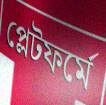
প্লেটফৰ্মে